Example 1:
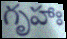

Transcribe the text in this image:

గృహాః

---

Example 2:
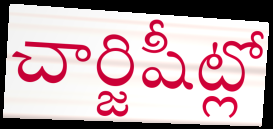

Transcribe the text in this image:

చార్జిషీట్లో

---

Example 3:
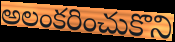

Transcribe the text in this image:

అలంకరించుకొని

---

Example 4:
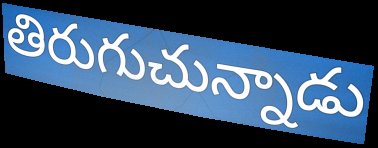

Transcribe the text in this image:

తిరుగుచున్నాడు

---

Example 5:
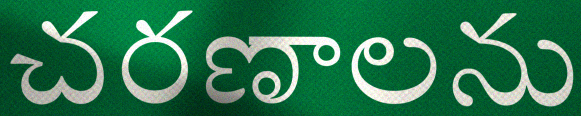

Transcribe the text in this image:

చరణాలను